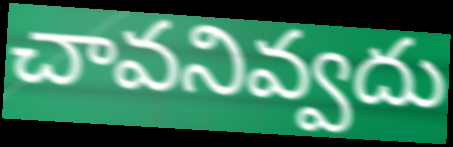
చావనివ్వదు